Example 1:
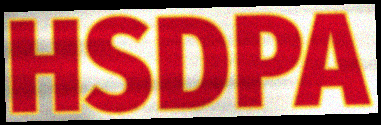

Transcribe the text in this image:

HSDPA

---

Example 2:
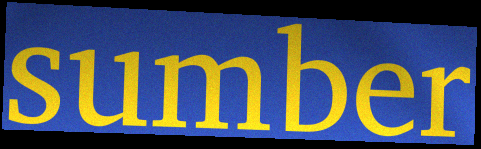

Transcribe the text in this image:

sumber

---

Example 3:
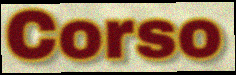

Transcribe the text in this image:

Corso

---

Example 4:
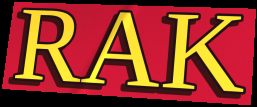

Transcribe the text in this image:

RAK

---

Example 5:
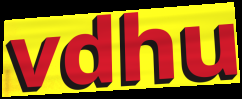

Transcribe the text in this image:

vdhu